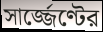
সার্জ্জেণ্টের